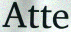
Atte